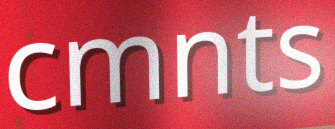
cmnts